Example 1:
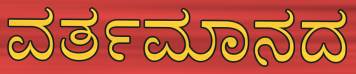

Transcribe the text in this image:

ವರ್ತಮಾನದ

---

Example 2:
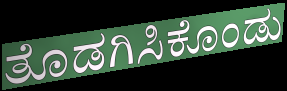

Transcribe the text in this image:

ತೊಡಗಿಸಿಕೊಂಡು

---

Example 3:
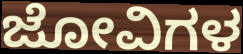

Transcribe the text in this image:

ಜೋವಿಗಳ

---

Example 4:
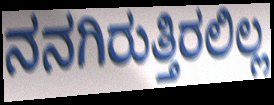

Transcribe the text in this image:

ನನಗಿರುತ್ತಿರಲಿಲ್ಲ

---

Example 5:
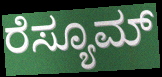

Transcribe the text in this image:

ರೆಸ್ಯೂಮ್